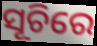
ସୂଚିରେ